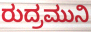
ರುದ್ರಮುನಿ